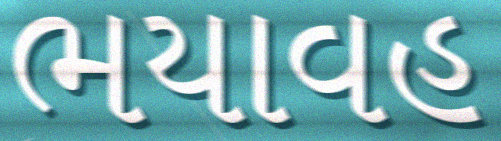
ભયાવહ